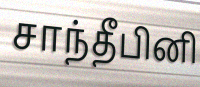
சாந்தீபினி